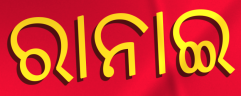
ରାନାଇ